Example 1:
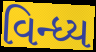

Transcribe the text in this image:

વિન્ધ્ય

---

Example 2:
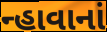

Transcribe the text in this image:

ન્હાવાનાં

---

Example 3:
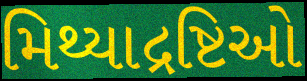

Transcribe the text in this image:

મિથ્યાદ્રષ્ટિઓ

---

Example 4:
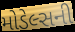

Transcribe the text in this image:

મોડેલ્સની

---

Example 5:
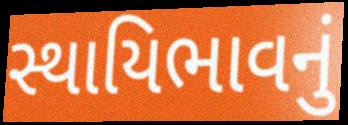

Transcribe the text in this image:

સ્થાયિભાવનું